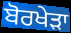
ਬੋਰਖੇੜਾ